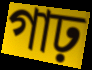
গাঢ়